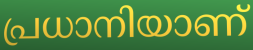
പ്രധാനിയാണ്